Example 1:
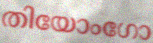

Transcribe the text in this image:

തിയോംഗോ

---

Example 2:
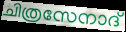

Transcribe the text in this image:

ചിത്രസേനാദ്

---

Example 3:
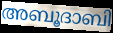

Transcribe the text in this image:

അബൂദാബി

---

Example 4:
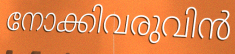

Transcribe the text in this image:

നോക്കിവരുവിൻ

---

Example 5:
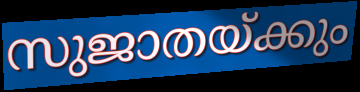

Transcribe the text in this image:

സുജാതയ്ക്കും